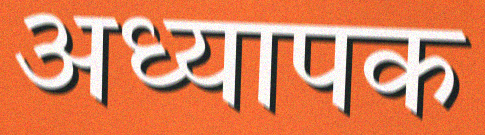
अध्‍यापक